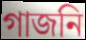
গাজনি